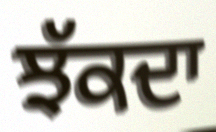
ਝੱਕਦਾ